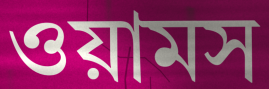
ওয়ামস